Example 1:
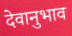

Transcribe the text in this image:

देवानुभाव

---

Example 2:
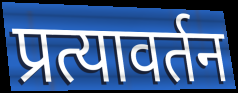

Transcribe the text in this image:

प्रत्यावर्तन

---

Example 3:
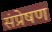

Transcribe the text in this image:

संप्रेषण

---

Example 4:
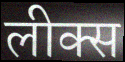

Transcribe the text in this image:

लीक्स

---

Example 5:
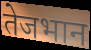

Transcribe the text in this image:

तेजभान